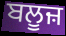
ਬਲੂਜ਼